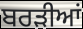
ਬਰੜੀਆਂ